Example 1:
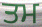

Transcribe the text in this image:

ਤਮ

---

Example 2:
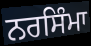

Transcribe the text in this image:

ਨਰਸਿੰਮਾ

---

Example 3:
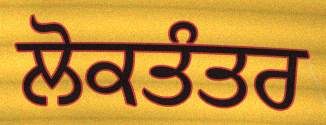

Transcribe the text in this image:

ਲੋਕਤੰਤਰ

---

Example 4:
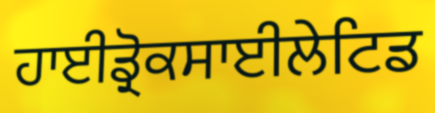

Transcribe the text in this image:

ਹਾਈਡ੍ਰੋਕਸਾਈਲੇਟਿਡ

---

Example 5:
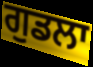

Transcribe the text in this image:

ਗੁਡਲਾ